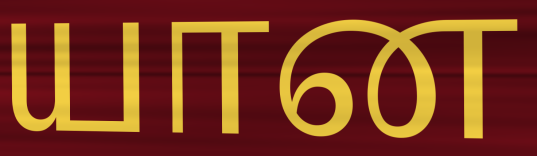
யான